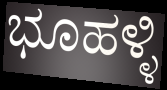
ಭೂಹಳ್ಳಿ